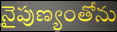
నైపుణ్యంతోను